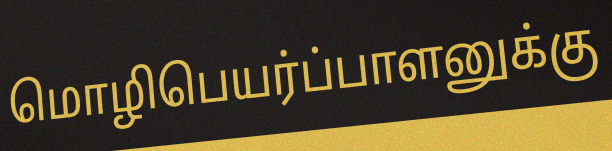
மொழிபெயர்ப்பாளனுக்கு